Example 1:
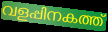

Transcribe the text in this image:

വളപ്പിനകത്ത്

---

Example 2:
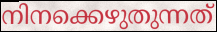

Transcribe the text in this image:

നിനക്കെഴുതുന്നത്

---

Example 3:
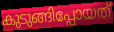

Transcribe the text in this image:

കുടുങ്ങിപ്പോയത്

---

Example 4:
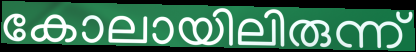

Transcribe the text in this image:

കോലായിലിരുന്ന്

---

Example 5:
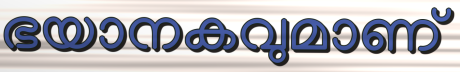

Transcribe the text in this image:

ഭയാനകവുമാണ്